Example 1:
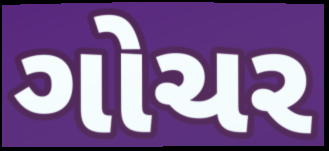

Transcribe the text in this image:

ગોચર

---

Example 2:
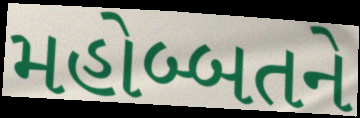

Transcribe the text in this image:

મહોબ્બતને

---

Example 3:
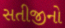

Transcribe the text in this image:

સતીજીનો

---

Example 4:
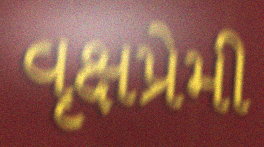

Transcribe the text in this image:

વૃક્ષપ્રેમી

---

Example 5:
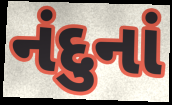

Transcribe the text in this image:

નંદુનાં